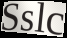
Sslc